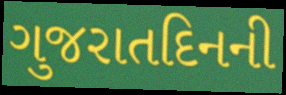
ગુજરાતદિનની